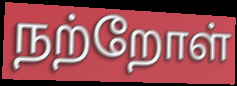
நற்றோள்